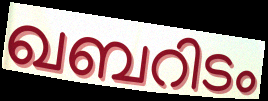
ഖബറിടം